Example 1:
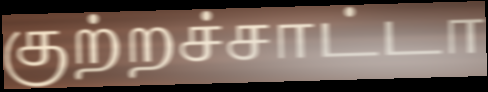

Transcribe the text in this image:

குற்றச்சாட்டா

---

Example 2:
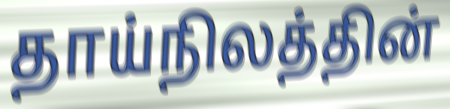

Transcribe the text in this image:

தாய்நிலத்தின்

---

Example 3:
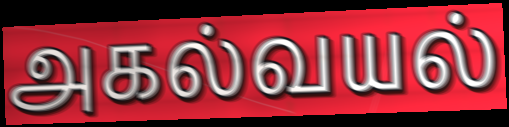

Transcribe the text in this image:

அகல்வயல்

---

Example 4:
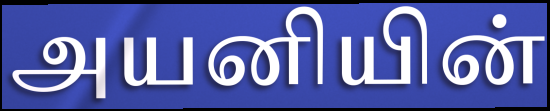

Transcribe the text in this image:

அயனியின்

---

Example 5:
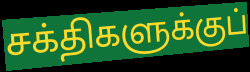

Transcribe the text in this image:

சக்திகளுக்குப்